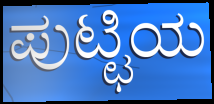
ಪುಟ್ಟಿಯ